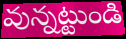
వున్నట్టుండి